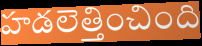
హడలెత్తించింది